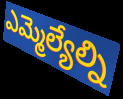
ఎమ్మెల్యేల్ని